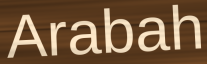
Arabah